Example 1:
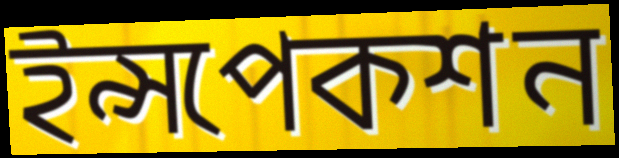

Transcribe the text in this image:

ইন্সপেকশন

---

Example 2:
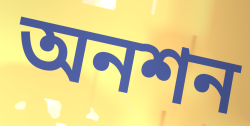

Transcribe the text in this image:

অনশন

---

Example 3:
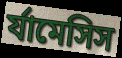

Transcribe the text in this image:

র্যামেসিস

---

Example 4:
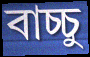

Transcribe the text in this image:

বাচ্চু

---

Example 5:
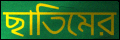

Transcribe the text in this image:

ছাতিমের